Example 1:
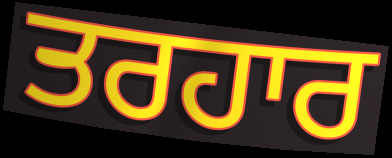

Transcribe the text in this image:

ਤਰਹਾਰ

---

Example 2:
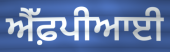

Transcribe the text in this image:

ਐੱਫ਼ਪੀਆਈ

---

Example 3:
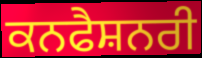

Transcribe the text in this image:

ਕਨਫੈਸ਼ਨਰੀ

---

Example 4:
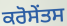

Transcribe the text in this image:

ਕਰੋਸੇਂਤਸ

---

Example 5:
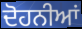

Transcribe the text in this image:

ਦੋਹਨੀਆਂ